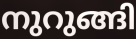
നുറുങ്ങി